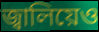
জ্বালিয়েও